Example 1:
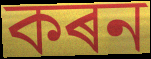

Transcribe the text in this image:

কৰন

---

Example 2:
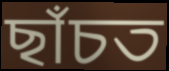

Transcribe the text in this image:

ছাঁচত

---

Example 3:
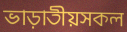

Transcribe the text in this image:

ভাড়াতীয়সকল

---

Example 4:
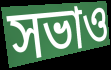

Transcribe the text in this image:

সভাও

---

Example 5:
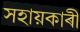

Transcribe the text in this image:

সহায়কাৰী